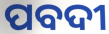
ପବଦୀ